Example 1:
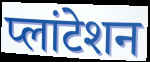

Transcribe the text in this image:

प्लांटेशन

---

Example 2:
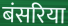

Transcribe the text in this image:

बंसरिया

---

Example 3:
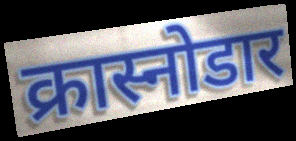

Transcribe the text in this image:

क्रास्नोडार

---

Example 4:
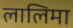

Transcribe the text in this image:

लालिमा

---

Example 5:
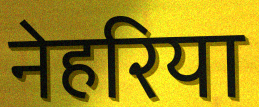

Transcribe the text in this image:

नेहरिया